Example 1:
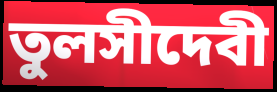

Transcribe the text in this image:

তুলসীদেবী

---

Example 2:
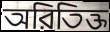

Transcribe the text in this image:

অরিতিক্ত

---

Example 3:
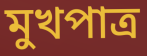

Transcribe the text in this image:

মুখপাত্র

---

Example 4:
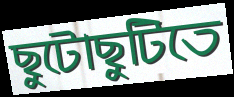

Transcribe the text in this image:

ছুটোছুটিতে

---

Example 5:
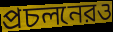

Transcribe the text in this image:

প্রচলনেরও